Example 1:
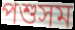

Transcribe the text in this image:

পশুসম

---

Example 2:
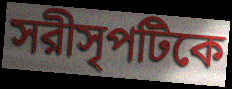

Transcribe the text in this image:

সরীসৃপটিকে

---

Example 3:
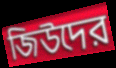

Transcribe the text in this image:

জিউদের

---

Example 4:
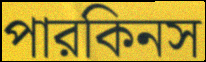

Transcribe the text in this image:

পারকিনস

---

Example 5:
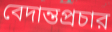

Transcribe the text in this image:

বেদান্তপ্রচার